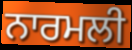
ਨਾਰਮਲੀ